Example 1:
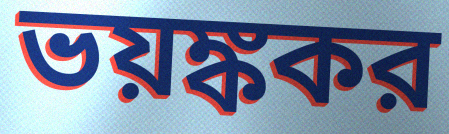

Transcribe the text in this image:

ভয়ঙ্ককর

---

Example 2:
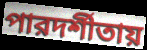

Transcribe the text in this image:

পারদর্শীতায়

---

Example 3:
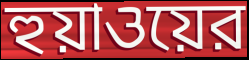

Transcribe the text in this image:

হুয়াওয়ের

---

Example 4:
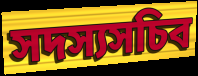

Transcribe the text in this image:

সদস্যসচিব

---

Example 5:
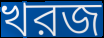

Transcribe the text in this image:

খরজ